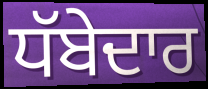
ਧੱਬੇਦਾਰ